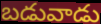
బడువాడు